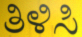
ತಿಳಿಸಿ